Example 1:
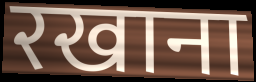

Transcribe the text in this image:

रखाना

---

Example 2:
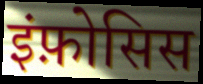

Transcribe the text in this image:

इंफ़ोसिस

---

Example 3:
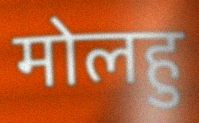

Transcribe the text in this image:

मोलहु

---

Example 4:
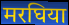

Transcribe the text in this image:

मरघिया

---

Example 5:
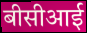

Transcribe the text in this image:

बीसीआई